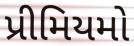
પ્રીમિયમો